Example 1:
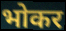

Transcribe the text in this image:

भोकर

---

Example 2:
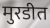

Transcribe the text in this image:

मुरडीत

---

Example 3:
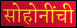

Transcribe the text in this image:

सोहोनींची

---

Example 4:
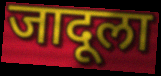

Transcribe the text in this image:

जादूला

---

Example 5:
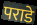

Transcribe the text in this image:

पराडे